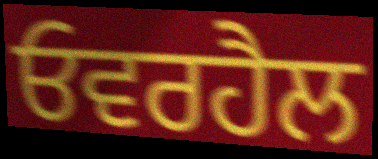
ਓਵਰਹੈਲ